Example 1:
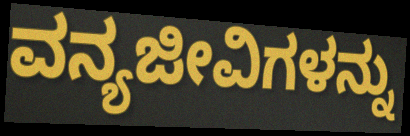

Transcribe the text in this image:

ವನ್ಯಜೀವಿಗಳನ್ನು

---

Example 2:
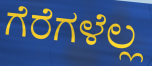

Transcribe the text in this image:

ಗೆರೆಗಳೆಲ್ಲ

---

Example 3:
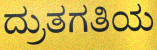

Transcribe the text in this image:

ದ್ರುತಗತಿಯ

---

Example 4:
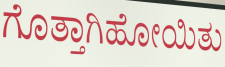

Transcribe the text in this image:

ಗೊತ್ತಾಗಿಹೋಯಿತು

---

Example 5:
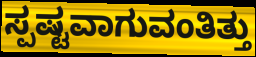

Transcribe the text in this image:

ಸ್ಪಷ್ಟವಾಗುವಂತಿತ್ತು